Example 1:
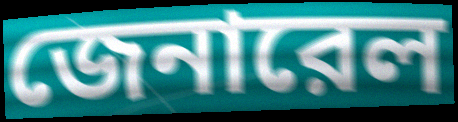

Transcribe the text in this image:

জেনারেল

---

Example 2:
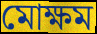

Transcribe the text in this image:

মোক্ষম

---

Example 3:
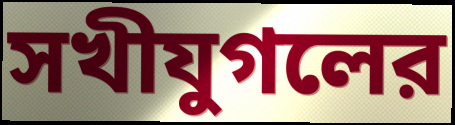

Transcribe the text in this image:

সখীযুগলের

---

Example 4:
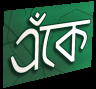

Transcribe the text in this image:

এঁকে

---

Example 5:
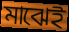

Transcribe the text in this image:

মাঝেই